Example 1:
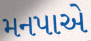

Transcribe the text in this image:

મનપાએ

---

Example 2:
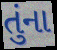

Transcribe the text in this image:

તુંના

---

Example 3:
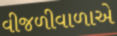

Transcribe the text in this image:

વીજળીવાળાએ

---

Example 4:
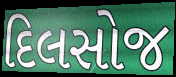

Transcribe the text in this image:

દિલસોજ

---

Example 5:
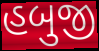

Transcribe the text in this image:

હબુજી